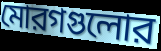
মোরগগুলোর